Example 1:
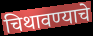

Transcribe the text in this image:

चिथावण्याचे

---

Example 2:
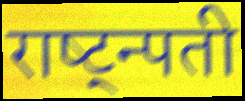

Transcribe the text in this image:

राष्ट्न्पती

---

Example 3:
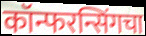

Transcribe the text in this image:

कॉन्फरन्सिंगचा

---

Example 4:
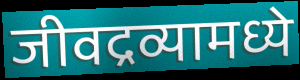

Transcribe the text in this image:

जीवद्रव्यामध्ये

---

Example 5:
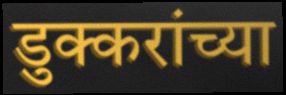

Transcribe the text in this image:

डुक्करांच्या